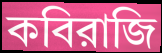
কবিরাজি